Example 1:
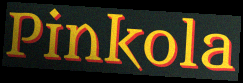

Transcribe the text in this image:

Pinkola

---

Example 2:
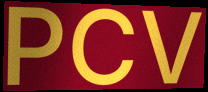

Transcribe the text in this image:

PCV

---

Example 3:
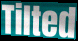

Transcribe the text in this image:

Tilted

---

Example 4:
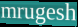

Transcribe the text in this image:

mrugesh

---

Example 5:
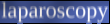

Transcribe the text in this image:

laparoscopy